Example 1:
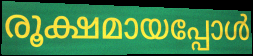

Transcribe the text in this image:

രൂക്ഷമായപ്പോൾ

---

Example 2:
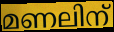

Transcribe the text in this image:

മണലിന്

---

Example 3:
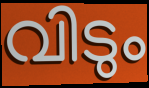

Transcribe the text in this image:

വിടും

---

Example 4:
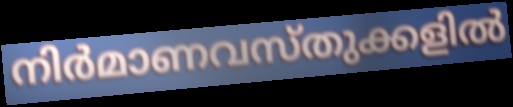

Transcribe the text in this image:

നിർമാണവസ്തുക്കളിൽ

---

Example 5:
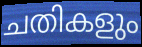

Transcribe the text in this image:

ചതികളും